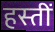
हस्तीं